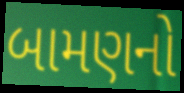
બામણનો